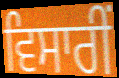
ਵਿਸਾਰੀਂ